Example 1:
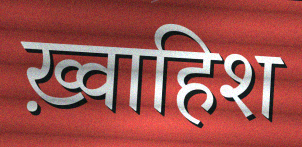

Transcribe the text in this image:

ख़्वाहिश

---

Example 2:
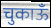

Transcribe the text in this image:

चुकाऊँ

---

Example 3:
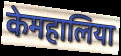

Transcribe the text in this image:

केमहालिया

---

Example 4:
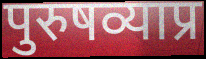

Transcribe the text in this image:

पुरुषव्याप्र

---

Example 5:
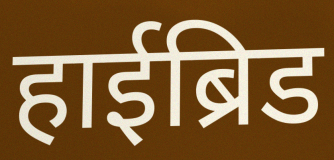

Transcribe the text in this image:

हाईब्रिड